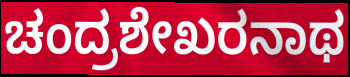
ಚಂದ್ರಶೇಖರನಾಥ